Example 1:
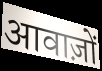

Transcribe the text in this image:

आवाज़ों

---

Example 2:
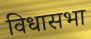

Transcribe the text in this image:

विधासभा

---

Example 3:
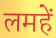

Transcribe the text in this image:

लमहें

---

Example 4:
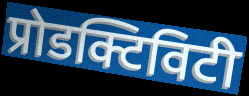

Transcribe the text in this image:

प्रोडक्टिविटी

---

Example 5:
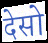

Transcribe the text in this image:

देसो